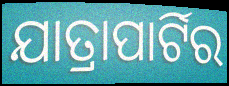
ଯାତ୍ରାପାର୍ଟିର